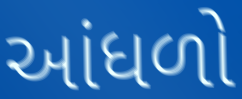
આંધળો